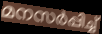
മനസർപ്പിച്ച്